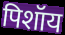
पिशॉय